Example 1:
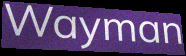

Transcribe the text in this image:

Wayman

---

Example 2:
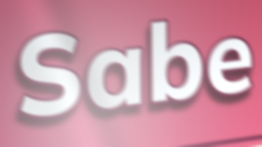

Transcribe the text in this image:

Sabe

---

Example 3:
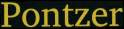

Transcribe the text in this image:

Pontzer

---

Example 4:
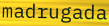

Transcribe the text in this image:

madrugada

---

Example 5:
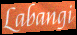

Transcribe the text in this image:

Labangi